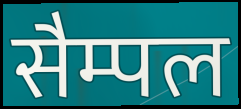
सैम्पल